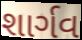
શાર્ગવ